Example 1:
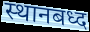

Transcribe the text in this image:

स्थानबध्द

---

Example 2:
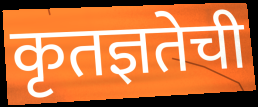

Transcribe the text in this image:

कृतज्ञतेची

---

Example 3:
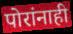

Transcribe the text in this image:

पोरांनाही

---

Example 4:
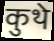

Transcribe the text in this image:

कुथे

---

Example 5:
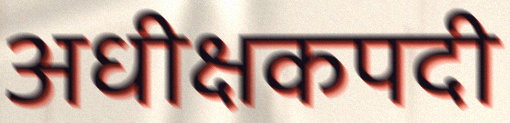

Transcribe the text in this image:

अधीक्षकपदी